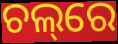
ଚଲ୍‌ରେ